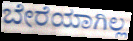
ಬೇರೆಯಾಗಿಲ್ಲ